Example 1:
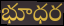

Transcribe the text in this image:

భూధర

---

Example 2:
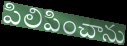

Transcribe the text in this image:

పిలిపించాను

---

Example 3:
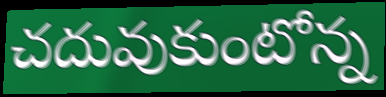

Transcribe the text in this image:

చదువుకుంటోన్న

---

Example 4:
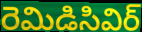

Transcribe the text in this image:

రెమిడిసివిర్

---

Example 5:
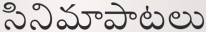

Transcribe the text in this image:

సినిమాపాటలు